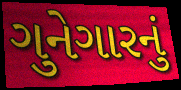
ગુનેગારનું